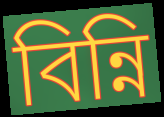
বিন্নি